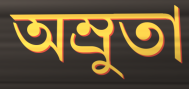
অম্রুতা